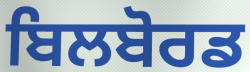
ਬਿਲਬੋਰਡ